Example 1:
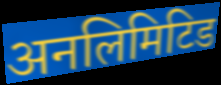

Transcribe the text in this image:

अनलिमिटिड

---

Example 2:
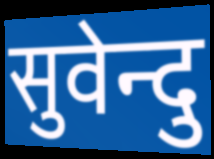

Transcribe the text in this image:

सुवेन्दु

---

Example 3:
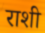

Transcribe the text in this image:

राशी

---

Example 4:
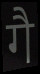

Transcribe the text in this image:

गै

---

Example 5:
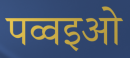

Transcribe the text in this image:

पव्वइओ